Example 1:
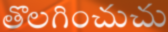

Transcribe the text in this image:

తొలగించుచు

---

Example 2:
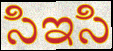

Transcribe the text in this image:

సిఇసి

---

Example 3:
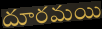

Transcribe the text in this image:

దూరమయి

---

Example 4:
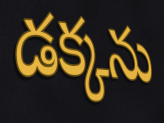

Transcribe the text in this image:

డక్కను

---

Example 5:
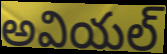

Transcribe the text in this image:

అవియల్